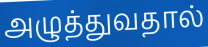
அழுத்துவதால்